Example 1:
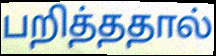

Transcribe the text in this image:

பறித்ததால்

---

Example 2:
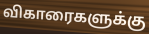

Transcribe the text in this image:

விகாரைகளுக்கு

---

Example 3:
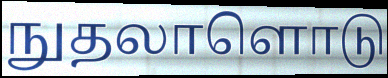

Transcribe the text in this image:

நுதலாளொடு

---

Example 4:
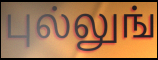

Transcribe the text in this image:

புல்லுங்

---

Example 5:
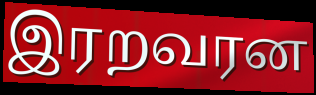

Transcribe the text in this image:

இரறவரன